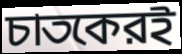
চাতকেরই